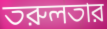
তরুলতার